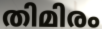
തിമിരം